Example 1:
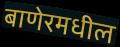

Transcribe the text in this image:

बाणेरमधील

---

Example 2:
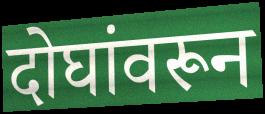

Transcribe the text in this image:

दोघांवरून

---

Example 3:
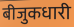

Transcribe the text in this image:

बीजुकधारी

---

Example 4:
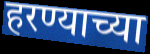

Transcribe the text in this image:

हरण्याच्या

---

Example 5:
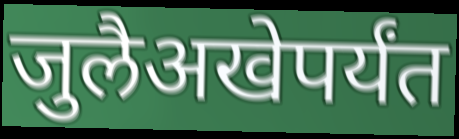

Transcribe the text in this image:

जुलैअखेपर्यंत